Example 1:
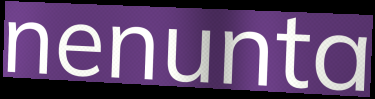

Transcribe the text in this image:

nenunta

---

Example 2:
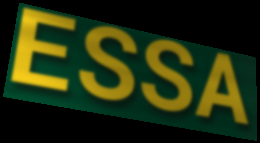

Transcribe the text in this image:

ESSA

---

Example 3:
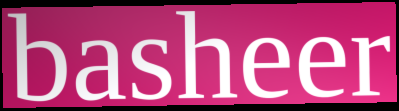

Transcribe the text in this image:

basheer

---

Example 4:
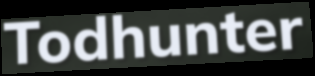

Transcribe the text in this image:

Todhunter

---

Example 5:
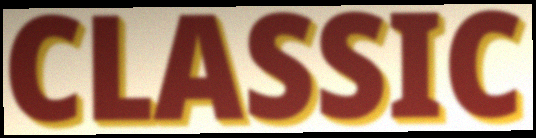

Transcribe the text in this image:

CLASSIC